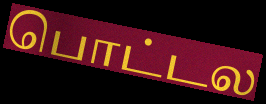
பொட்டல